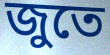
জুতে